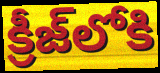
క్రీజ్‌లోకి